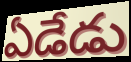
ఏడేడు